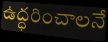
ఉద్ధరించాలనే